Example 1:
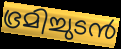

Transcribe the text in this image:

ഭ്രമിച്ചുടൻ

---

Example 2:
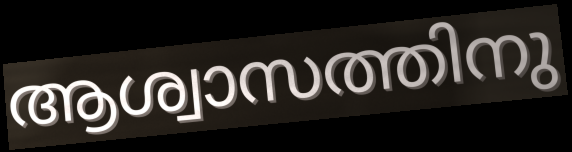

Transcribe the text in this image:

ആശ്വാസത്തിനു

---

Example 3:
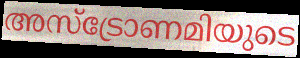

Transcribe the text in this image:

അസ്ട്രോണമിയുടെ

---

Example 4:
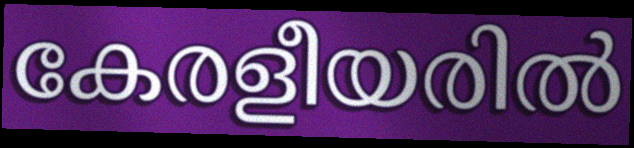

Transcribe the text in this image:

കേരളീയരിൽ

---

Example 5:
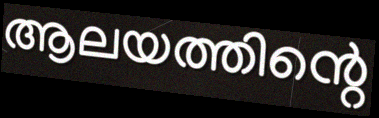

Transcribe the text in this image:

ആലയത്തിന്റെ